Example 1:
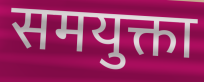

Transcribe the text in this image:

समयुक्ता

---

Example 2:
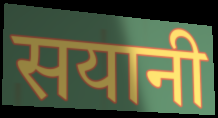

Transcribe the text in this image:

सयानी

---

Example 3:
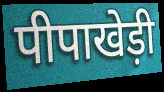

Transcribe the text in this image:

पीपाखेड़ी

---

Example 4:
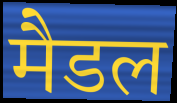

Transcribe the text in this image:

मैडल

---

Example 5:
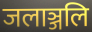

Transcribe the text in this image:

जलाञ्जलि